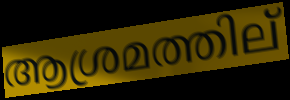
ആശ്രമത്തില്